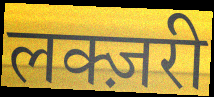
लक्ज़री